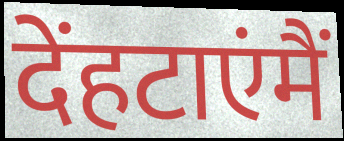
देंहटाएंमैं